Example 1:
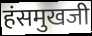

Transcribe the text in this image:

हंसमुखजी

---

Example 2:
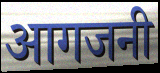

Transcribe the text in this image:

आगजनी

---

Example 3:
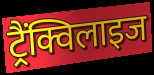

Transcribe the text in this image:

ट्रैंक्विलाइज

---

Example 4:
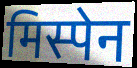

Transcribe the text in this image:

मिस्पेन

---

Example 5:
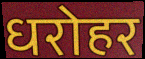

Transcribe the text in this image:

धरोहर